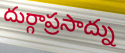
దుర్గాప్రసాద్ను